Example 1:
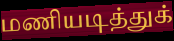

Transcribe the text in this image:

மணியடித்துக்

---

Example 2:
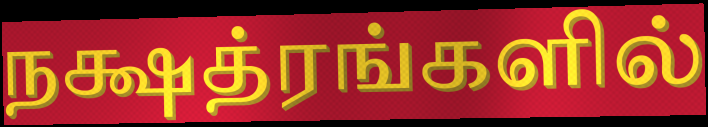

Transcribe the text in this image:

நக்ஷத்ரங்களில்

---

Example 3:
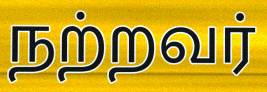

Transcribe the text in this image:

நற்றவர்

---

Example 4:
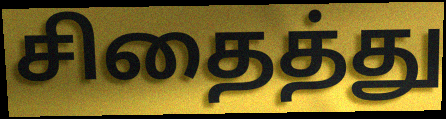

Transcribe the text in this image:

சிதைத்து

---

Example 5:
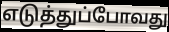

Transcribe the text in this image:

எடுத்துப்போவது